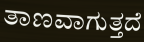
ತಾಣವಾಗುತ್ತದೆ